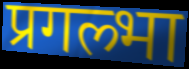
प्रगल्भा